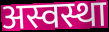
अस्वस्था